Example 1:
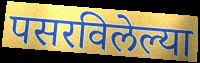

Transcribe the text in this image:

पसरविलेल्या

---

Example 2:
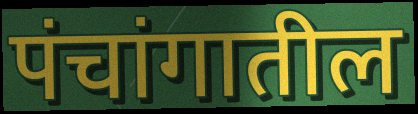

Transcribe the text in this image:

पंचांगातील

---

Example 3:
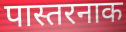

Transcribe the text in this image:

पास्तरनाक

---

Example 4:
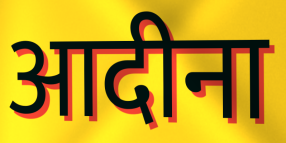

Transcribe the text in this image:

आदीना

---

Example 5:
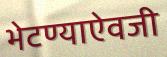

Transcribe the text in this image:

भेटण्याऐवजी